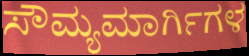
ಸೌಮ್ಯಮಾರ್ಗಿಗಳ